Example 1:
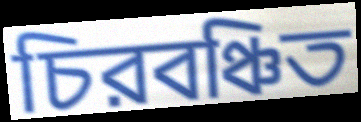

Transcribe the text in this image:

চিরবঞ্চিত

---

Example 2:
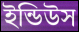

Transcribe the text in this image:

ইন্ডিউস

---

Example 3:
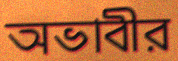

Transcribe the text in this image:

অভাবীর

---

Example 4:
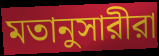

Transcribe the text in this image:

মতানুসারীরা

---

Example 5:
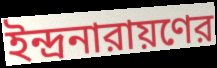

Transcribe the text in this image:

ইন্দ্রনারায়ণের